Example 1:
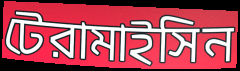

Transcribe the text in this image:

টেরামাইসিন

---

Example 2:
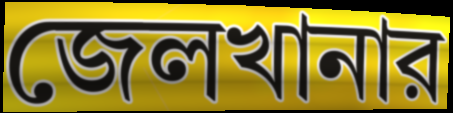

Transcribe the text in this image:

জেলখানার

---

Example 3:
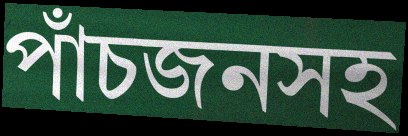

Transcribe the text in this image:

পাঁচজনসহ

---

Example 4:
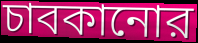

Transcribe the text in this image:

চাবকানোর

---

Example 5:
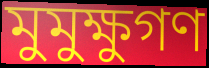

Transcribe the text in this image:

মুমুক্ষুগণ